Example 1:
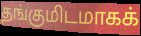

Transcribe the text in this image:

தங்குமிடமாகக்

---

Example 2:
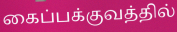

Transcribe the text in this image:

கைப்பக்குவத்தில்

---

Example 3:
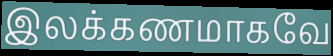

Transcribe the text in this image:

இலக்கணமாகவே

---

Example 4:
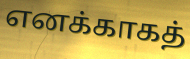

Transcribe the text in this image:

எனக்காகத்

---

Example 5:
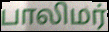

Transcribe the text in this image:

பாலிமர்